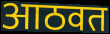
आठवत